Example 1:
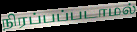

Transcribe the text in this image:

நிரப்பப்படாமல்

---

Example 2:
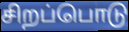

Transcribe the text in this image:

சிறப்பொடு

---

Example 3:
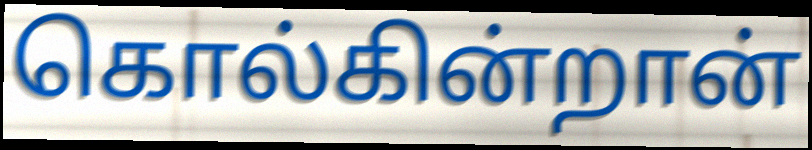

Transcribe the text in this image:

கொல்கின்றான்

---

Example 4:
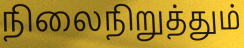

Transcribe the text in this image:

நிலைநிறுத்தும்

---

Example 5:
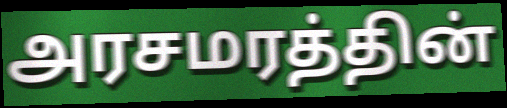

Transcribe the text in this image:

அரசமரத்தின்